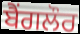
ਬੈਂਗਲੌਰ